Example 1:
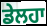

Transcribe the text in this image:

ਡੇਲਹਾ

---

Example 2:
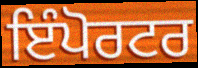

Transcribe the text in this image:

ਇੰਪੋਰਟਰ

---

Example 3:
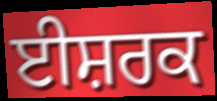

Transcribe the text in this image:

ਈਸ਼ਰਕ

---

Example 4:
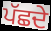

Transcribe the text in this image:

ਪੱਛਦੇ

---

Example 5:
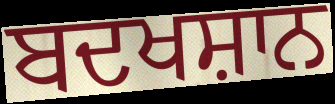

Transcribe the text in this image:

ਬਦਖਸ਼ਾਨ